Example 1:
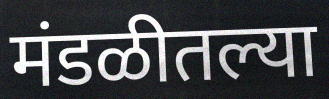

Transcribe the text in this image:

मंडळीतल्या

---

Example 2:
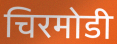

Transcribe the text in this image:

चिरमोडी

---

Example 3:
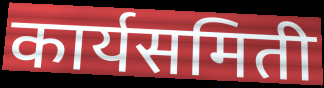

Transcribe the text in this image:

कार्यसमिती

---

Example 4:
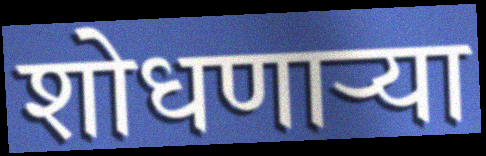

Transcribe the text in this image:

शोधणाऱ्या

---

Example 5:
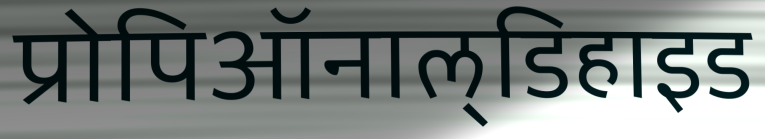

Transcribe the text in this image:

प्रोपिऑनाल्डिहाइड